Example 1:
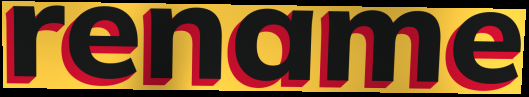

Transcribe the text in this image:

rename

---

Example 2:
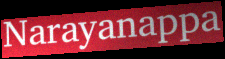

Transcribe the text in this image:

Narayanappa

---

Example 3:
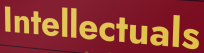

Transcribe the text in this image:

Intellectuals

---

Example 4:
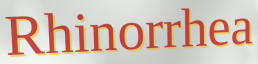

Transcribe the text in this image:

Rhinorrhea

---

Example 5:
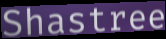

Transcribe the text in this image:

Shastree